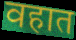
वहात